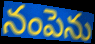
నంపెను